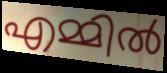
എമ്മിൽ